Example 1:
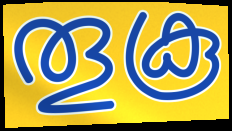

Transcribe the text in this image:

തൂകൂ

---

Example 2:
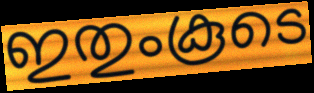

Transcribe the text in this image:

ഇതുംകൂടെ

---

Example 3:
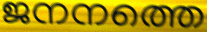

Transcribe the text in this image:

ജനനത്തെ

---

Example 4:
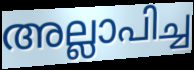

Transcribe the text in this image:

അല്ലാപിച്ച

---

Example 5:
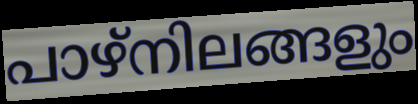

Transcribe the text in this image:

പാഴ്നിലങ്ങളും